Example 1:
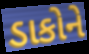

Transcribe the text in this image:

ડાકોને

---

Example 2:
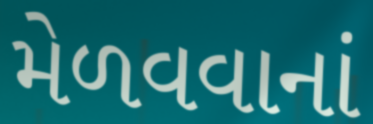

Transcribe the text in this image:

મેળવવાનાં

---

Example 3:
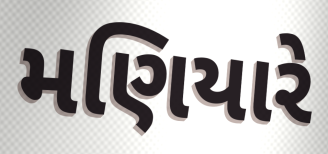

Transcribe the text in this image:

મણિયારે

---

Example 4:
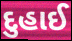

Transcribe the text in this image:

દુહાઈ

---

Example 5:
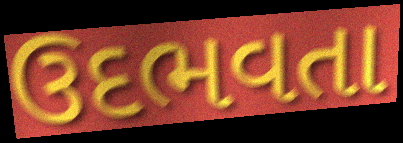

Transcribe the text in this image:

ઉદભવતા